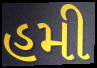
હમી